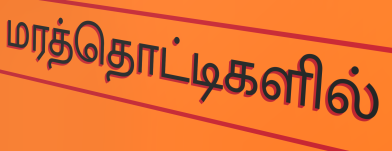
மரத்தொட்டிகளில்